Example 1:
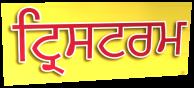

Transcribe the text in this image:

ਟ੍ਰਿਸਟਰਮ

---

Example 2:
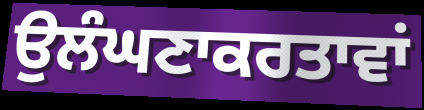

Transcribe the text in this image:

ਉਲੰਘਣਾਕਰਤਾਵਾਂ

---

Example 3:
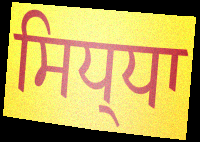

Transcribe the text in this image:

ਸਿਧ੍ਧਾ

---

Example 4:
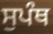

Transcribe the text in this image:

ਸੁਪੰਥ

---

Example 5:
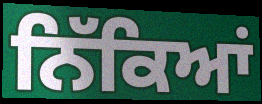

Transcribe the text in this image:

ਨਿੱਕਿਆਂ